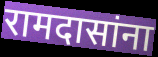
रामदासांना